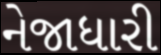
નેજાધારી